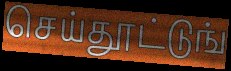
செய்தூட்டுங்